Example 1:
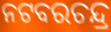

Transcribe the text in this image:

ନଟବରଚନ୍ଦ୍ର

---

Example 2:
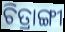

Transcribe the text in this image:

ଚିତ୍ରାଙ୍ଗୀ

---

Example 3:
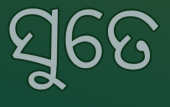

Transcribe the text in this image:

ସୁତେ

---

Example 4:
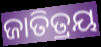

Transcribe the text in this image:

ଜାତିତ୍ରୟ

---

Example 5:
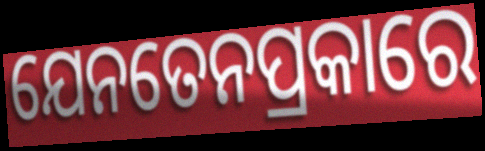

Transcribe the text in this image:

ଯେନତେନପ୍ରକାରେ